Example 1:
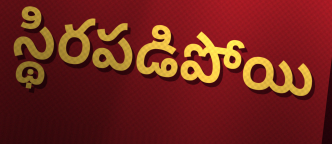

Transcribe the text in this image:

స్థిరపడిపోయి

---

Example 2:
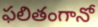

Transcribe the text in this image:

ఫలితంగానో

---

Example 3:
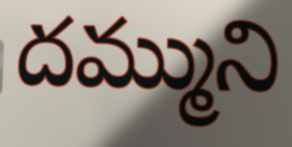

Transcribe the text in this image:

దమ్ముని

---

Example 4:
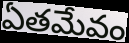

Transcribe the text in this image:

ఏతమేవం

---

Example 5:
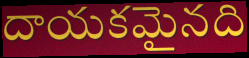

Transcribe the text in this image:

దాయకమైనది